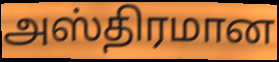
அஸ்திரமான